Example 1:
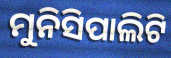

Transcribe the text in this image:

ମୁନିସିପାଲିଟି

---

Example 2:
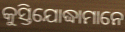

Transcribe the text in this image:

କୁସ୍ତିଯୋଦ୍ଧାମାନେ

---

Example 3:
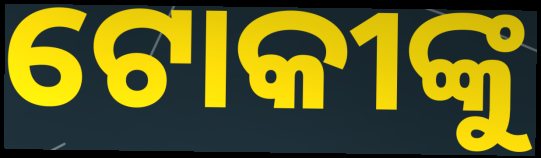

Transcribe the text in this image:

ଟୋକୀଙ୍କୁ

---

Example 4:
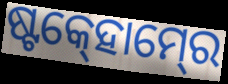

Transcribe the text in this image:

ଷ୍ଟକ୍‍ହୋମ୍‍ରେ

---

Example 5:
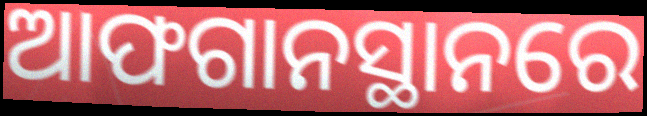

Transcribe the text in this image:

ଆଫଗାନସ୍ଥାନରେ